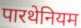
पारथेनियम